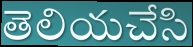
తెలియచేసి